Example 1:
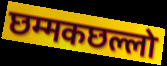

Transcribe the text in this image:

छम्मकछल्लो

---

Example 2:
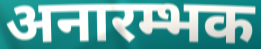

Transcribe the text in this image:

अनारम्भक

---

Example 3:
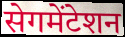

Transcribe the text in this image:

सेगमेंटेशन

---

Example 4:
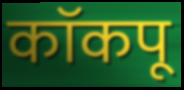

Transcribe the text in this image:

कॉकपू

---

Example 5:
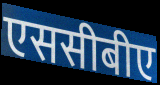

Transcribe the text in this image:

एससीबीए